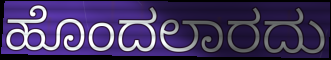
ಹೊಂದಲಾರದು